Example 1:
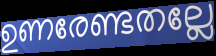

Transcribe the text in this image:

ഉണരേണ്ടതല്ലേ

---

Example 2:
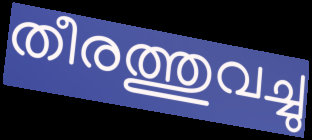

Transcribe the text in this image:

തീരത്തുവച്ചു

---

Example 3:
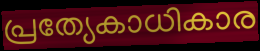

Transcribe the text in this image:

പ്രത്യേകാധികാര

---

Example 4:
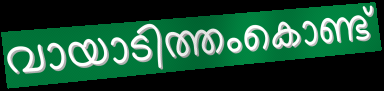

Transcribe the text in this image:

വായാടിത്തംകൊണ്ട്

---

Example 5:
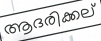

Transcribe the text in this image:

ആദരിക്കല്